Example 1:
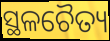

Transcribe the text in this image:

ସ୍ଥଳଚୈତ୍ୟ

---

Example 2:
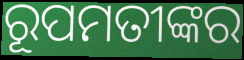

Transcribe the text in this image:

ରୂପମତୀଙ୍କର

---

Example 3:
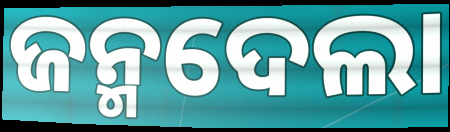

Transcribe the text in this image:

ଜନ୍ମଦେଲା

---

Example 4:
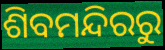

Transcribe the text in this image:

ଶିବମନ୍ଦିରରୁ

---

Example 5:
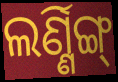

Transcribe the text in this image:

ଲର୍ଣ୍ଣିଙ୍ଗ୍